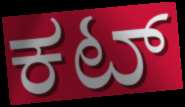
ಕಟ್